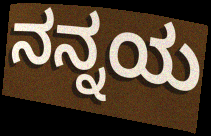
ನನ್ನಯ